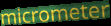
micrometer